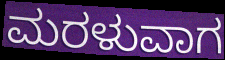
ಮರಳುವಾಗ